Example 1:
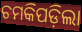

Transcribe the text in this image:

ଚମକିପଡ଼ିଲା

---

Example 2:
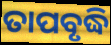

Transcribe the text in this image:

ତାପବୃଦ୍ଧି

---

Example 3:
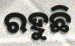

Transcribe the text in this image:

ରହୁଛି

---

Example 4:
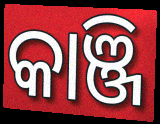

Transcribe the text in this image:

କାଞ୍ଜି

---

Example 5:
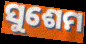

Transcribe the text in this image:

ସୁଶେମ